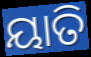
ୟାତି